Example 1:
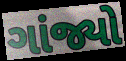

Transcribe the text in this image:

ગાંજ્યો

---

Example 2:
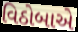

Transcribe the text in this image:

વિઠોબાએ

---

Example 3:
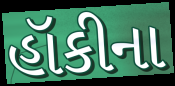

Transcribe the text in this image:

હૉકીના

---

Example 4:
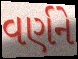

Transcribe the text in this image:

વર્ણને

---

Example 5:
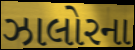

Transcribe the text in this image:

ઝાલોરના